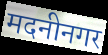
मदनीनगर